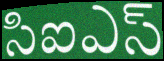
సిఐఎస్